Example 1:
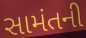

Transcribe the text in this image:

સામંતની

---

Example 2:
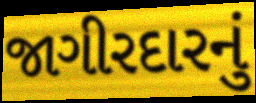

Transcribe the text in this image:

જાગીરદારનું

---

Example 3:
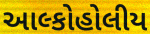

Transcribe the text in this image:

આલ્કોહોલીય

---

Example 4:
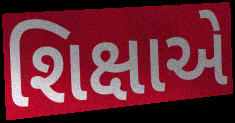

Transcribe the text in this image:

શિક્ષાએ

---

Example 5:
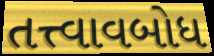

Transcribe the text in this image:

તત્ત્વાવબોધ